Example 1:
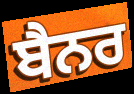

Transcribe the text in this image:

ਬੈਨਰ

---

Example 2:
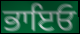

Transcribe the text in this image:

ਭਾਇਓ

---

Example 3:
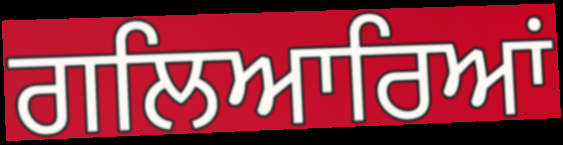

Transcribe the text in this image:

ਗਲਿਆਰਿਆਂ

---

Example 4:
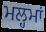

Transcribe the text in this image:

ਮਲ੍ਹਮਾਂ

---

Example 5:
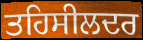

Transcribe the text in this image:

ਤਹਿਸੀਲਦਰ